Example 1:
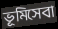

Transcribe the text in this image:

ভূমিসেবা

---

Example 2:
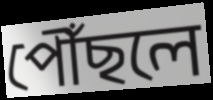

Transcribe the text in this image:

পৌঁছলে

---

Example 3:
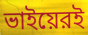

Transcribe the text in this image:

ভাইয়েরই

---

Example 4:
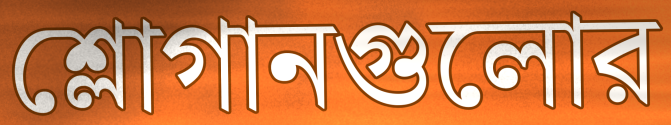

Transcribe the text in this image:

শ্লোগানগুলোর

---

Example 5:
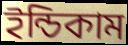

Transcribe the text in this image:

ইন্ডিকাম